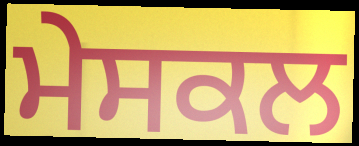
ਮੇਸਕਲ